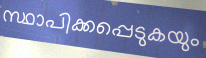
സ്ഥാപിക്കപ്പെടുകയും